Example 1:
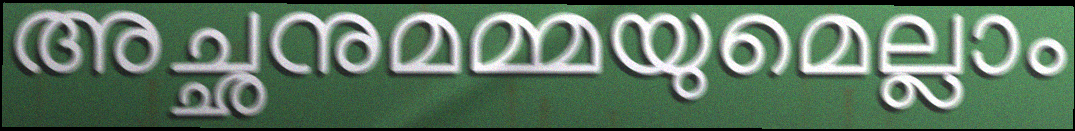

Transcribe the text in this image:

അച്ഛനുമമ്മയുമെല്ലാം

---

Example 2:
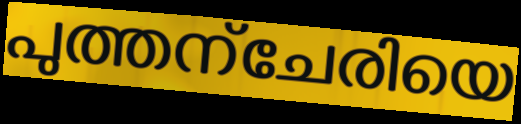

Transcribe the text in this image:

പുത്തന്ചേരിയെ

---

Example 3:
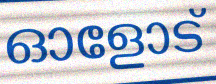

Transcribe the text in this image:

ഓളോട്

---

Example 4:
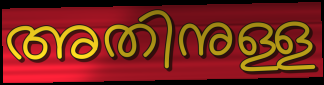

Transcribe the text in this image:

അതിനുള്ള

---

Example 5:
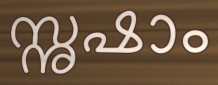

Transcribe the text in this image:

സ്നുഷാം